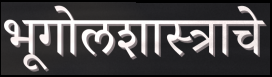
भूगोलशास्त्राचे